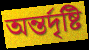
অন্তৰ্দৃষ্টি